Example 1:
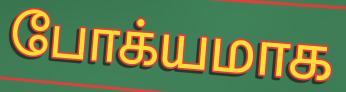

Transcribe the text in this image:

போக்யமாக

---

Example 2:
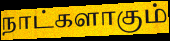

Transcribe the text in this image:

நாட்களாகும்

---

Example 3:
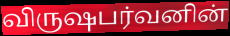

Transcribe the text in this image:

விருஷபர்வனின்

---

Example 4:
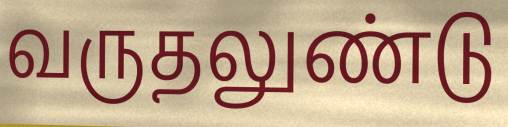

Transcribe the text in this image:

வருதலுண்டு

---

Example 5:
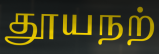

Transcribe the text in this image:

தூயநற்